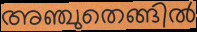
അഞ്ചുതെങ്ങിൽ